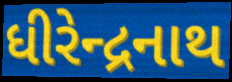
ધીરેન્દ્રનાથ